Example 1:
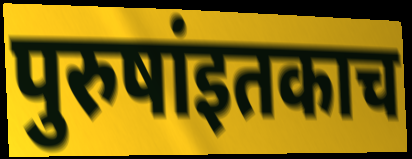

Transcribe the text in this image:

पुरुषांइतकाच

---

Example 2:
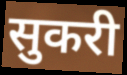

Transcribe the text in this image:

सुकरी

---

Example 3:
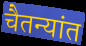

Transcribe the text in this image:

चैतन्यांत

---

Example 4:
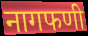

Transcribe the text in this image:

नागफणी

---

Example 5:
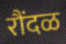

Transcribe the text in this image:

रौंदळ